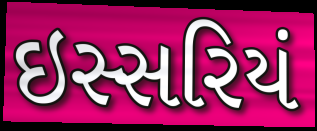
ઇસ્સરિયં